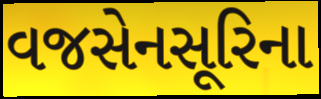
વજસેનસૂરિના